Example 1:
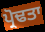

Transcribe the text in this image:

ਪ੍ਰੋਢਤਾ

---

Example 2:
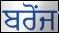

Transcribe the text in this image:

ਬਰੋਂਜ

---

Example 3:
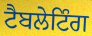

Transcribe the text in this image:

ਟੈਬਲੇਟਿੰਗ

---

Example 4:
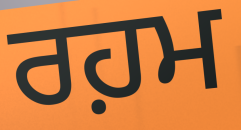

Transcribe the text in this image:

ਰਹ਼ਮ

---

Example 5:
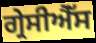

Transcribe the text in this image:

ਗ੍ਰੇਸੀਐੱਸ